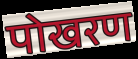
पोखरण